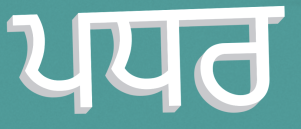
ਪਧਰ